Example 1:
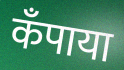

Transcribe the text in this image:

कँपाया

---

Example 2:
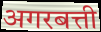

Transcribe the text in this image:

अगरबत्ती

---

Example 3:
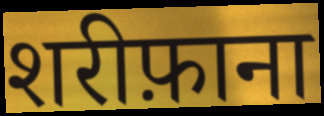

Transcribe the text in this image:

शरीफ़ाना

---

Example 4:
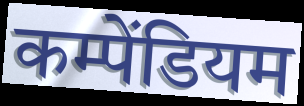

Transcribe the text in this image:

कम्पेंडियम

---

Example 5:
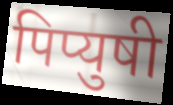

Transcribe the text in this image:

पिप्युषी